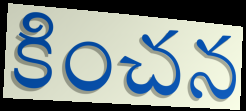
కించన